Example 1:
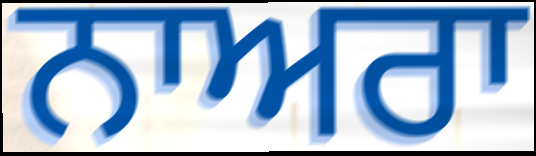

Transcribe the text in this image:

ਨਾਅਰਾ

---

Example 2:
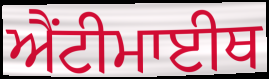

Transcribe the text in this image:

ਐਂਟੀਮਾਈਥ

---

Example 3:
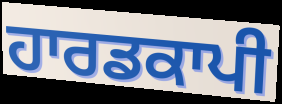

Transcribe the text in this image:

ਹਾਰਡਕਾਪੀ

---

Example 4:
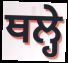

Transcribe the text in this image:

ਥਲ੍ਹੇ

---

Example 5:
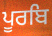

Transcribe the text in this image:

ਪੂਰਬਿ